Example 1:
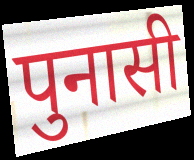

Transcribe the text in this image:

पुनासी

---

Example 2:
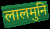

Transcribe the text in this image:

लालमुनि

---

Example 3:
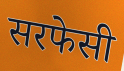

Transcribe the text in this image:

सरफेसी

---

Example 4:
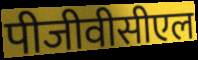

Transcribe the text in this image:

पीजीवीसीएल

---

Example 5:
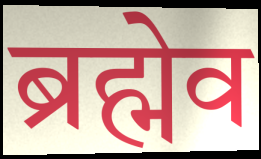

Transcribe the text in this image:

ब्रह्मेव